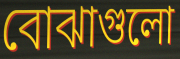
বোঝাগুলো